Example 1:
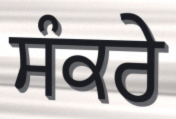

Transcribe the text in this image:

ਸੰਕਰੇ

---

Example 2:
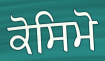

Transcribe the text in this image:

ਕੋਸਿਮੋ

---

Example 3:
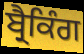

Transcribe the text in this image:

ਬ੍ਰੈਕਿੰਗ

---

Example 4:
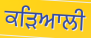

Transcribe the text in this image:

ਕੜਿਆਲੀ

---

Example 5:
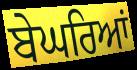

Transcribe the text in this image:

ਬੇਘਰਿਆਂ